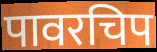
पावरचिप